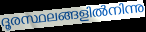
ദൂരസ്ഥലങ്ങളിൽനിന്നു